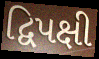
દ્વિપક્ષી